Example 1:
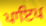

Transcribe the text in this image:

ਪਾਇਪ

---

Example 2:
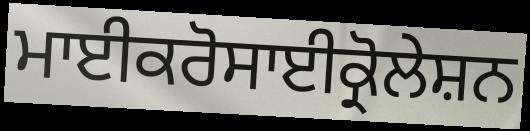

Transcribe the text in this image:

ਮਾਈਕਰੋਸਾਈਕ੍ਰੋਲੇਸ਼ਨ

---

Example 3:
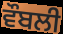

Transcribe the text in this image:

ਵੌਬਲੀ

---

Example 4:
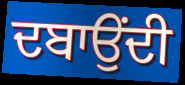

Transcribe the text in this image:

ਦਬਾਉਂਦੀ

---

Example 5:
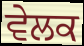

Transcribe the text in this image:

ਵੇਲਕ